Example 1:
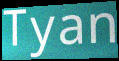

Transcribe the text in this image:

Tyan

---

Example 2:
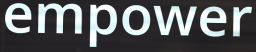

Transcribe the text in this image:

empower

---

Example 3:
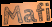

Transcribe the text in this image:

Mafi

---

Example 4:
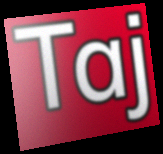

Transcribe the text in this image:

Taj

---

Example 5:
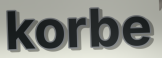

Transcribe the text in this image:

korbe